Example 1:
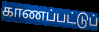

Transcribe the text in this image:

காணப்பட்டுப்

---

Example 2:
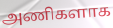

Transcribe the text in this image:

அணிகளாக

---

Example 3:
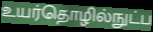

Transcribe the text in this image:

உயர்தொழில்நுட்ப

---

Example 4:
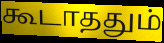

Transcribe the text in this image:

கூடாததும்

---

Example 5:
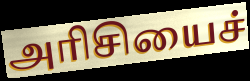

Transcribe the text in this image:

அரிசியைச்